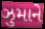
ઝુમાને